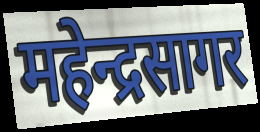
महेन्द्रसागर